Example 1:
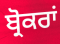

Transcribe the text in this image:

ਬ੍ਰੋਕਰਾਂ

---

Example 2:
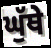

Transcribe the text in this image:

ਘੁੱਥੇ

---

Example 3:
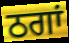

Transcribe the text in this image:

ਠਗਾਂ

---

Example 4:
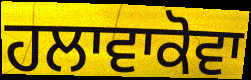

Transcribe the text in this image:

ਹਲਾਵਾਕੋਵਾ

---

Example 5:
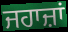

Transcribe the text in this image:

ਜਹਾਜ਼ਾਂ